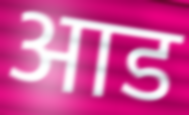
आड